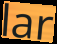
lar